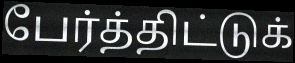
பேர்த்திட்டுக்